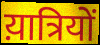
य़ात्रियों